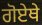
ਗੋਏਥੇ